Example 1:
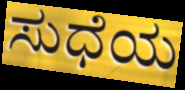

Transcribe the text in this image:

ಸುಧೆಯ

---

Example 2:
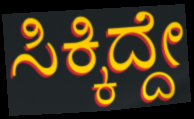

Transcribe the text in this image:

ಸಿಕ್ಕಿದ್ದೇ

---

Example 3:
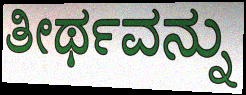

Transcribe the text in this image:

ತೀರ್ಥವನ್ನು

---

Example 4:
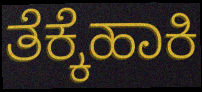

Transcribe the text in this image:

ತೆಕ್ಕೆಹಾಕಿ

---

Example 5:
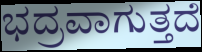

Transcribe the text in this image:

ಭದ್ರವಾಗುತ್ತದೆ